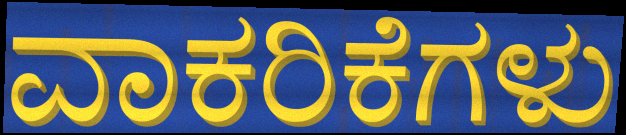
ವಾಕರಿಕೆಗಳು